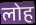
लोह